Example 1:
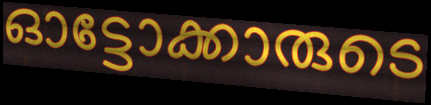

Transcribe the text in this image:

ഓട്ടോക്കാരുടെ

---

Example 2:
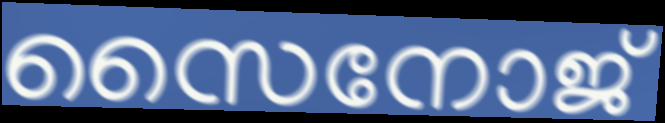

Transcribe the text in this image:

സൈനോജ്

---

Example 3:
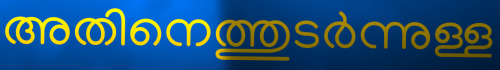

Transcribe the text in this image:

അതിനെത്തുടർന്നുള്ള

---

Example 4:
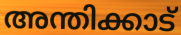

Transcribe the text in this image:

അന്തിക്കാട്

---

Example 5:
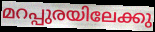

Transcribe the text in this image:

മറപ്പുരയിലേക്കു